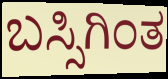
ಬಸ್ಸಿಗಿಂತ